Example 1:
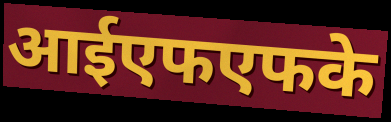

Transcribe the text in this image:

आईएफएफके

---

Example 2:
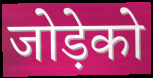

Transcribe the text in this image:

जोड़ेको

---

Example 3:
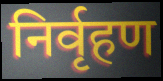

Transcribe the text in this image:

निर्वृहण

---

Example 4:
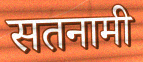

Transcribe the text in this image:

सतनामी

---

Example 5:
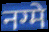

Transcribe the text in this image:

नग्मे